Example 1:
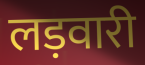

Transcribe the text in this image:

लड़वारी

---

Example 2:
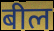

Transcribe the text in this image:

बील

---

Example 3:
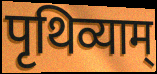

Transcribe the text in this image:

पृथिव्याम्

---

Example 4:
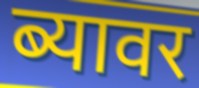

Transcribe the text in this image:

ब्यावर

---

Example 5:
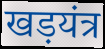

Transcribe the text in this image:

खड़यंत्र